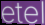
etel